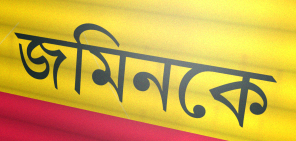
জমিনকে